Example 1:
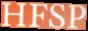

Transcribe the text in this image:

HFSP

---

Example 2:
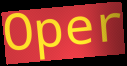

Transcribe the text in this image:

Oper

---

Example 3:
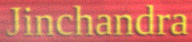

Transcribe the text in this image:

Jinchandra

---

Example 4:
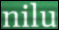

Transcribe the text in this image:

nilu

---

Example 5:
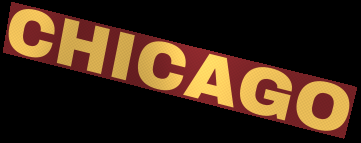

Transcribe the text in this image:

CHICAGO